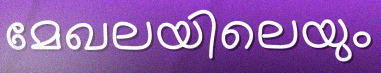
മേഖലയിലെയും